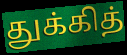
துக்கித்